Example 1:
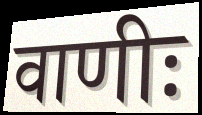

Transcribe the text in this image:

वाणीः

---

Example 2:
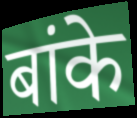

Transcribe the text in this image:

बांके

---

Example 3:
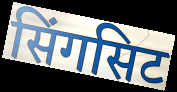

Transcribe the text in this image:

सिंगसिट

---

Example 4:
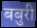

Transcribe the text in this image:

बबुरी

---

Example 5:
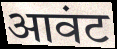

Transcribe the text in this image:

आवंट